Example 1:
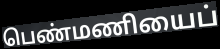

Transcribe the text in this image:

பெண்மணியைப்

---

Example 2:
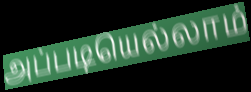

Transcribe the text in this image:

அப்படியெல்லாம்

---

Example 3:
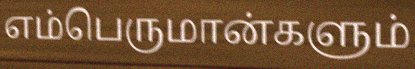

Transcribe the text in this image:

எம்பெருமான்களும்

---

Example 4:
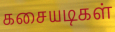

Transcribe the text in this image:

கசையடிகள்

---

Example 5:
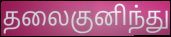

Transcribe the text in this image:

தலைகுனிந்து